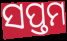
ସପ୍ତମ